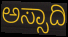
ಅಸ್ಸಾದಿ